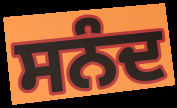
ਸਨੰਦ